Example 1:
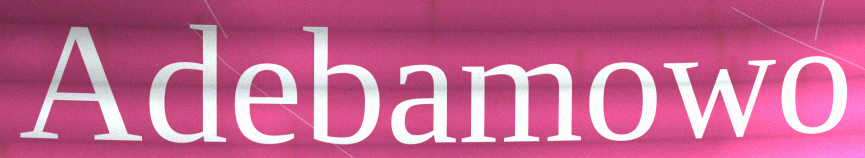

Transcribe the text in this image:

Adebamowo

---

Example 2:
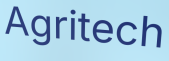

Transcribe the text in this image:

Agritech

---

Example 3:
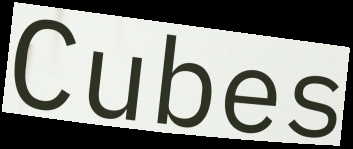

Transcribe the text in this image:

Cubes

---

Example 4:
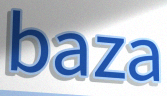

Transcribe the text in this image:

baza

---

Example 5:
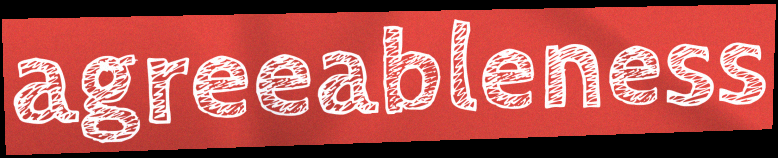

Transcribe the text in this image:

agreeableness